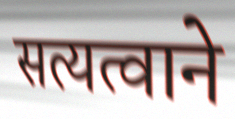
सत्यत्वाने